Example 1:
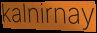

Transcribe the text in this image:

kalnirnay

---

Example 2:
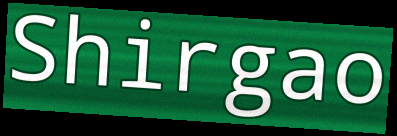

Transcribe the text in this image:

Shirgao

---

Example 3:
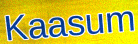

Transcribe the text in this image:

Kaasum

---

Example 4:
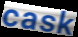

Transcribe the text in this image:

cask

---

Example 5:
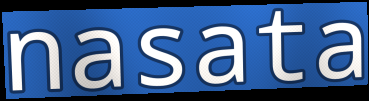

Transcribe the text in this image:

nasata